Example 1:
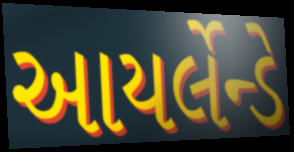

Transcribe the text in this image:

આયર્લેન્ડે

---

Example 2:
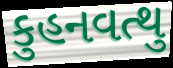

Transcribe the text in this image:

કુહનવત્થુ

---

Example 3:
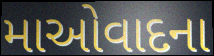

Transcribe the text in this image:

માઓવાદના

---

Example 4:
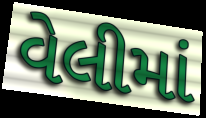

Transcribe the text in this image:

વેલીમાં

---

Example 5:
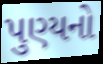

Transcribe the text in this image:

પુણ્યનો